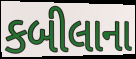
કબીલાના